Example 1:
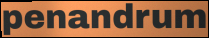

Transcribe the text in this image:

penandrum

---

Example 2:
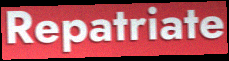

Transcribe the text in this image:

Repatriate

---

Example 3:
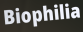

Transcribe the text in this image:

Biophilia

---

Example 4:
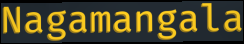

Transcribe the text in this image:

Nagamangala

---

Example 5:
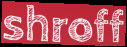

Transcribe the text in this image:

shroff